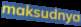
maksudnya